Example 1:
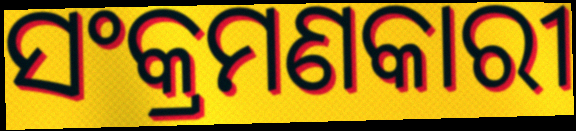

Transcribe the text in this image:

ସଂକ୍ରମଣକାରୀ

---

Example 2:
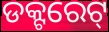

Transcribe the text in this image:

ଡକ୍ଟରେଟ୍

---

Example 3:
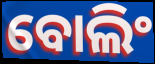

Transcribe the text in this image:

ବୋଲିଂ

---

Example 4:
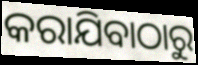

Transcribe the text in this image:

କରାଯିବାଠାରୁ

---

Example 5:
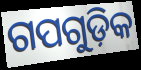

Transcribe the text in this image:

ଗପଗୁଡ଼ିକ